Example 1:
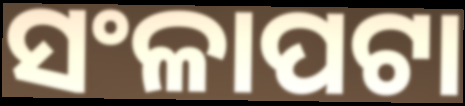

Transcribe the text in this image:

ସଂଳାପଟା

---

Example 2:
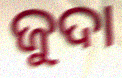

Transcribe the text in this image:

ଜୁଦା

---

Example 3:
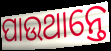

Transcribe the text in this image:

ପାଉଥାନ୍ତେ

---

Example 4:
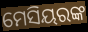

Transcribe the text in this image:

ମେସିୟରଙ୍କ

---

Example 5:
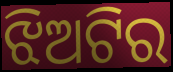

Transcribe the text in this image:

ଝିଅଟିର